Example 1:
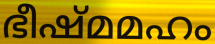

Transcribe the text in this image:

ഭീഷ്മമഹം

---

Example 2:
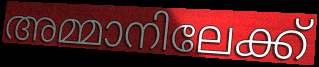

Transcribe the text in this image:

അമ്മാനിലേക്ക്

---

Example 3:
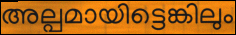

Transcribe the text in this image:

അല്പമായിട്ടെങ്കിലും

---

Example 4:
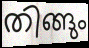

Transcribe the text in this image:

തിങ്ങും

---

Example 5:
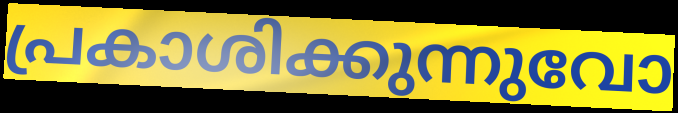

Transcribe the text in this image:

പ്രകാശിക്കുന്നുവോ